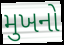
મુખનો